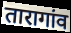
तारागांव